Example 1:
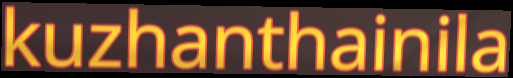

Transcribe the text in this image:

kuzhanthainila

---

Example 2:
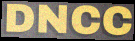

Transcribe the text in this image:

DNCC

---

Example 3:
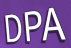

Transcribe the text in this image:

DPA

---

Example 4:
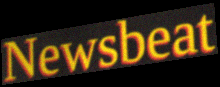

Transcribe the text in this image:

Newsbeat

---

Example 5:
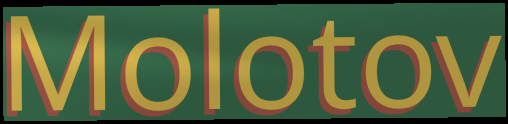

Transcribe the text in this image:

Molotov